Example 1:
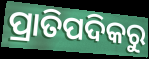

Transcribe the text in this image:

ପ୍ରାତିପଦିକରୁ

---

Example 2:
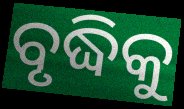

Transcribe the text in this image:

ବୃଦ୍ଧିକୁ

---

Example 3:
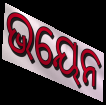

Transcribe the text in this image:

ଭୟେନ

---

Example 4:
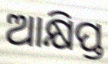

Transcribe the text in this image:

ଆକ୍ଷିପ୍ତ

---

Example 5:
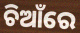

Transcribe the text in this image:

ଚିଆଁରେ